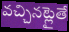
వచ్చినట్లైతే